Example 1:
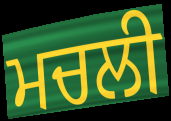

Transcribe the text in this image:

ਮਚਲੀ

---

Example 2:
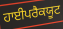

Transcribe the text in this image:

ਹਾਈਪਰੈਕਯੂਟ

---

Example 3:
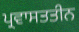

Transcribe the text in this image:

ਪ੍ਰਵਾਸਤਤੀਨ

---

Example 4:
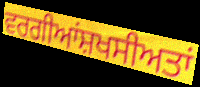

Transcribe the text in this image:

ਵਰਗੀਆਂਸ਼ਖਸੀਅਤਾਂ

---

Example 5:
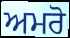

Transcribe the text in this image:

ਅਮਰੋ